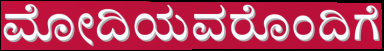
ಮೋದಿಯವರೊಂದಿಗೆ